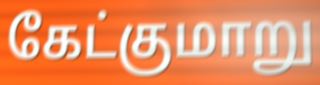
கேட்குமாறு